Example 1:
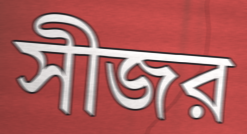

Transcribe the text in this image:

সীজর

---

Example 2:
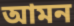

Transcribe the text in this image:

আমন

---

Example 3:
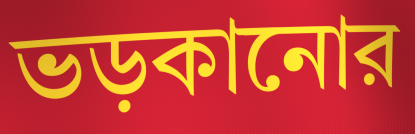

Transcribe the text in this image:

ভড়কানোর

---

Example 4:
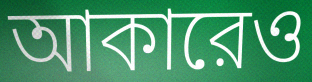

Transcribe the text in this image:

আকারেও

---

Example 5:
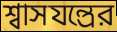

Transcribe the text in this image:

শ্বাসযন্ত্রের